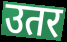
उतर